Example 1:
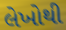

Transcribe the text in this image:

લેખોથી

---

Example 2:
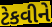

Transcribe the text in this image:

ટેકવીને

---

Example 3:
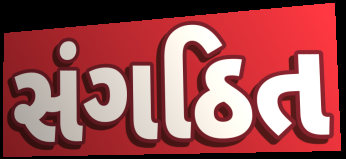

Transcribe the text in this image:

સંગઠિત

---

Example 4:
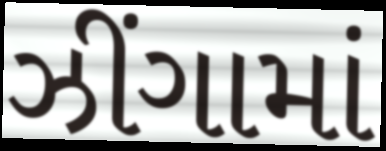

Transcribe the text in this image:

ઝીંગામાં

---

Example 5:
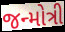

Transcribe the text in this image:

જન્મોત્રી